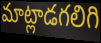
మాట్లాడగలిగి